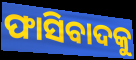
ଫାସିବାଦକୁ